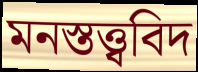
মনস্তত্ত্ববিদ